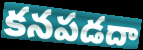
కనపడదా